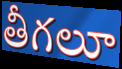
తీగలూ